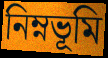
নিম্নভূমি